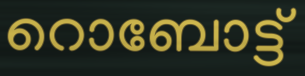
റൊബോട്ട്